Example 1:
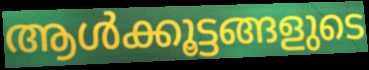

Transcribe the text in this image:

ആൾക്കൂട്ടങ്ങളുടെ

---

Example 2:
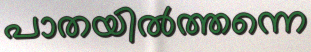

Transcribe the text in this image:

പാതയിൽത്തന്നെ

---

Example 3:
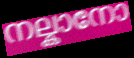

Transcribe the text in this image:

നല്കാനോ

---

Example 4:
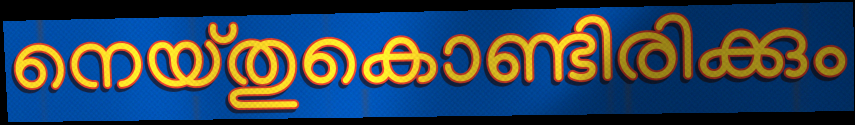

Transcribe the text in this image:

നെയ്തുകൊണ്ടിരിക്കും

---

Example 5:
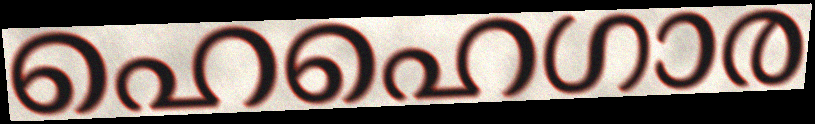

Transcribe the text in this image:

ഹെഹെഗാര